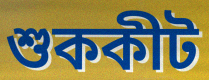
শুককীট